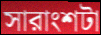
সারাংশটা